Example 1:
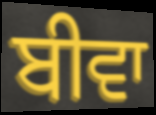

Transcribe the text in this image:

ਬੀਵਾ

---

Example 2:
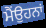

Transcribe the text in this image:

ਮੈਂਉਹਨਾਂ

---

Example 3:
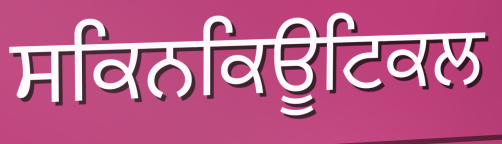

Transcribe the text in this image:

ਸਕਿਨਕਿਊਟਿਕਲ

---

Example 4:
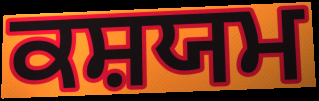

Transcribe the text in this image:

ਕਸ਼ਯਮ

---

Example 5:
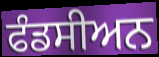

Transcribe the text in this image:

ਫੰਡਸੀਅਨ